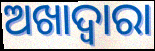
ଅଖାଦ୍ୱାରା